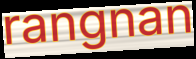
rangnan